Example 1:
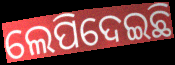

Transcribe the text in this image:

ଲେପିଦେଇଛି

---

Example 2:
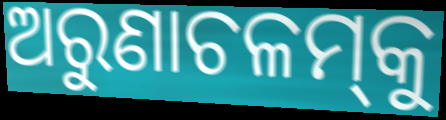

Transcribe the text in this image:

ଅରୁଣାଚଳମ୍‌କୁ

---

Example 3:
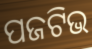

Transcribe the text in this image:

ପଜଟିଭ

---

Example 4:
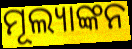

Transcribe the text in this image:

ମୂଲ୍ୟାଙ୍କନ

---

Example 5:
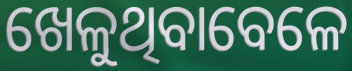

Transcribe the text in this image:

ଖେଳୁଥିବାବେଳେ